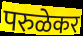
परुळेकर